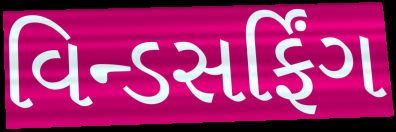
વિન્ડસર્ફિંગ